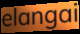
elangai